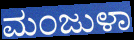
ಮಂಜುಳಾ